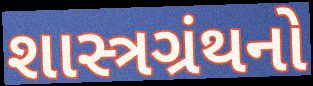
શાસ્ત્રગ્રંથનો